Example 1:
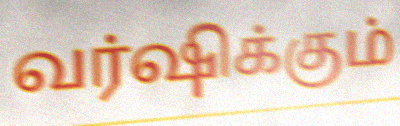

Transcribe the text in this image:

வர்ஷிக்கும்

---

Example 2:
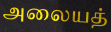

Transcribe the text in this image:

அலையத்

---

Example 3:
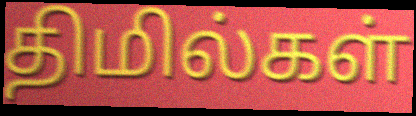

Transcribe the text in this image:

திமில்கள்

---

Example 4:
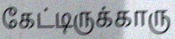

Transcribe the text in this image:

கேட்டிருக்காரு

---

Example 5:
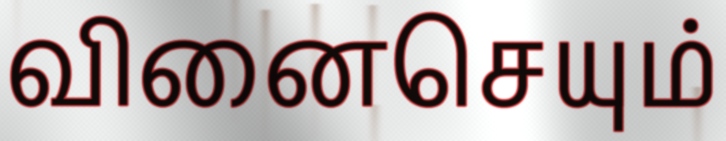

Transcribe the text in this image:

வினைசெயும்